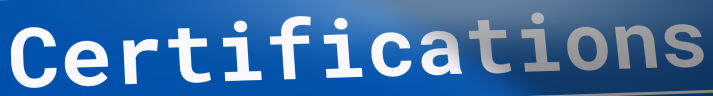
Certifications